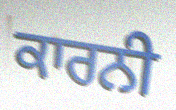
ਕਾਰਨੀ